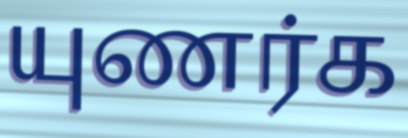
யுணர்க